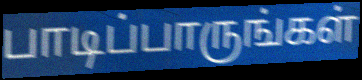
பாடிப்பாருங்கள்